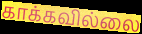
காக்கவில்லை